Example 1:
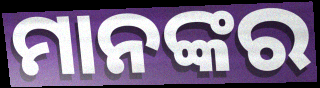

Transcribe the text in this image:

ମାନଙ୍କର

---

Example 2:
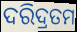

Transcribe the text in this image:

ଦରିଦ୍ରତମ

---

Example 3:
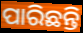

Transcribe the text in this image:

ପାରିଛନ୍ତି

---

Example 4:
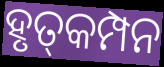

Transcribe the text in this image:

ହୃତ୍‌କମ୍ପନ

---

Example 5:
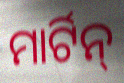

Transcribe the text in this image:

ମାର୍ଟିନ୍